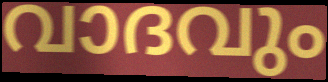
വാദവും